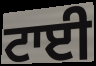
ਟਾਈ